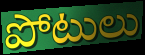
పోటులు